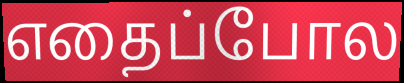
எதைப்போல